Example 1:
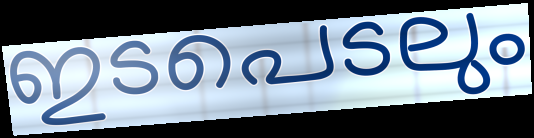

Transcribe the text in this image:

ഇടപെടലും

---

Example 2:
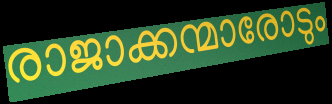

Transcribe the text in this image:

രാജാക്കന്മാരോടും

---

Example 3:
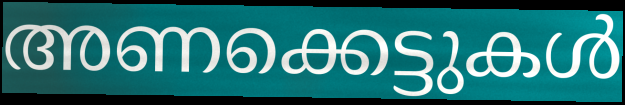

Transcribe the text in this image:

അണക്കെട്ടുകൾ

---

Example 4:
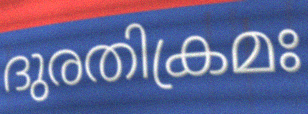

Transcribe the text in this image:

ദുരതിക്രമഃ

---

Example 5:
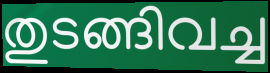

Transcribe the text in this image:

തുടങ്ങിവച്ച